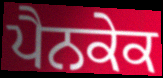
ਪੈਨਕੇਕ